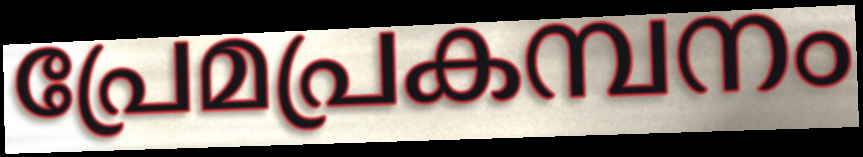
പ്രേമപ്രകമ്പനം